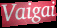
Vaigai